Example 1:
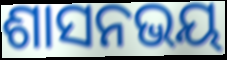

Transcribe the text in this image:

ଶାସନଭୟ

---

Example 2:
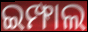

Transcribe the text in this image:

ଇମ୍ଫାଲ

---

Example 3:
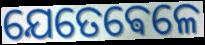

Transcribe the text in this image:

ଯେତେଵେଳେ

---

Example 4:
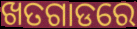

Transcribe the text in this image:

ଖତଗାଡରେ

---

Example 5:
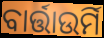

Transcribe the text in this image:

ବାର୍ତ୍ତାଉର୍ମି